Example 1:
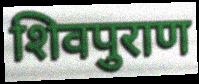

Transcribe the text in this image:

शिवपुराण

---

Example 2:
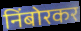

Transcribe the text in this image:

निंबोरकर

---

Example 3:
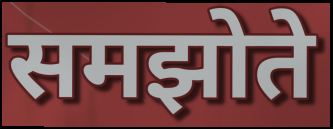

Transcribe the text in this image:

समझोते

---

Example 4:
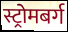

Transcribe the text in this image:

स्ट्रोमबर्ग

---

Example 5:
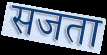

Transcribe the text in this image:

सजता